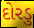
દોરડુ